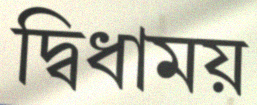
দ্বিধাময়